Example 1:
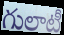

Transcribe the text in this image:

గులాటీ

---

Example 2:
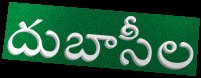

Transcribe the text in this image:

దుబాసీల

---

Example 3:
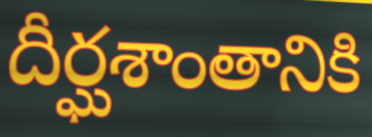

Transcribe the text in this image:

దీర్ఘశాంతానికి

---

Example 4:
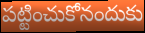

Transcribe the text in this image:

పట్టించుకోనందుకు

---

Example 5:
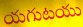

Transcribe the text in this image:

యగుటయు